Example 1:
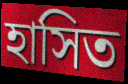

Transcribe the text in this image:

হাসিত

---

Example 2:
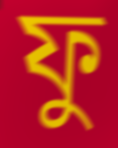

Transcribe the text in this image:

ফু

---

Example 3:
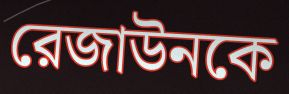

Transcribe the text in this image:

রেজাউনকে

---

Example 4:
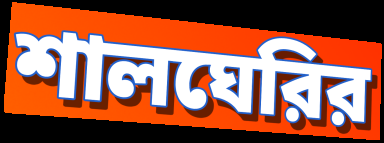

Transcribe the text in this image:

শালঘেরির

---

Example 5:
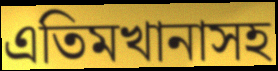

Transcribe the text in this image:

এতিমখানাসহ